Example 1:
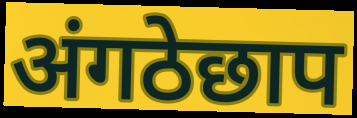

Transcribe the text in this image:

अंगठेछाप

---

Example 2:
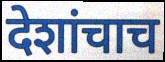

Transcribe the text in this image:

देशांचाच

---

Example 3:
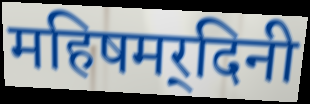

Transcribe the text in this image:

महिषमर्दिनी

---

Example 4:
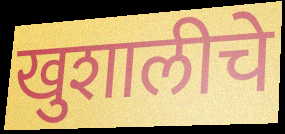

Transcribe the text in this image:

खुशालीचे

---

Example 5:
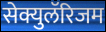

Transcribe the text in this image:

सेक्युलॅरिजम